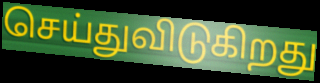
செய்துவிடுகிறது